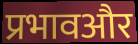
प्रभावऔर